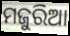
ମଜୁରିଆ